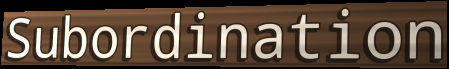
Subordination